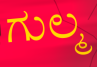
ಗುಲ್ಮ